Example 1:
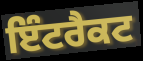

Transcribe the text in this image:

ਇੰਟਰੈਕਟ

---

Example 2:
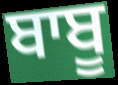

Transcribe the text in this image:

ਬਾਬੂ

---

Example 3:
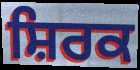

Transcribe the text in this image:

ਸ਼ਿਰਕ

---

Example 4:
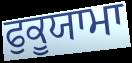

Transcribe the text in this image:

ਫੁਕੂਯਾਮਾ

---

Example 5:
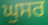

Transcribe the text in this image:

ਘੁਸਰ